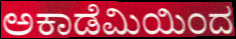
ಅಕಾಡೆಮಿಯಿಂದ